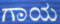
ಗಾಯ